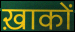
ख़ाकों